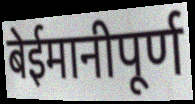
बेईमानीपूर्ण